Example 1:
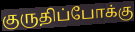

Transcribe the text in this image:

குருதிப்போக்கு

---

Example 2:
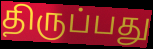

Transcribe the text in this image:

திருப்பது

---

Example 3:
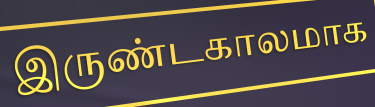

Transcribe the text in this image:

இருண்டகாலமாக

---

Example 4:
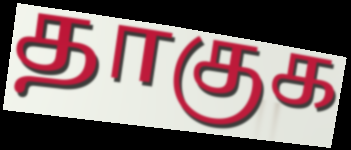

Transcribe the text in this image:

தாகுக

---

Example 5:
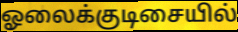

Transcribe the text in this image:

ஓலைக்குடிசையில்